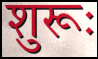
शुरूः